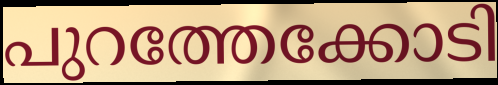
പുറത്തേക്കോടി